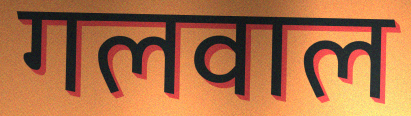
गलवाल